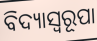
ବିଦ୍ୟାସ୍ୱରୂପା